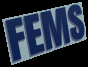
FEMS